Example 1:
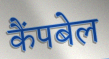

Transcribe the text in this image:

कैंपबेल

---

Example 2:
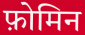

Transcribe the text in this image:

फ़ोमिन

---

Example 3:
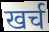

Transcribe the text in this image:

खर्च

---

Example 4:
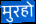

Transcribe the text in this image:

मुरहो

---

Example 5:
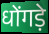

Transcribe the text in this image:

धोंगड़े